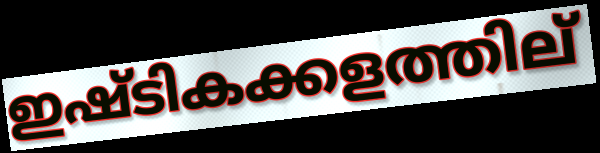
ഇഷ്ടികക്കളത്തില്